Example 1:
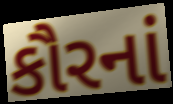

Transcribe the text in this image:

કૌરનાં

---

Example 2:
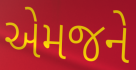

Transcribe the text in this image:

એમજને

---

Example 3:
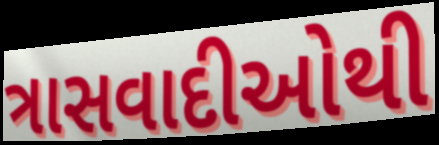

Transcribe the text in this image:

ત્રાસવાદીઓથી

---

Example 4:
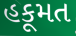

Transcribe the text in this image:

હકૂમત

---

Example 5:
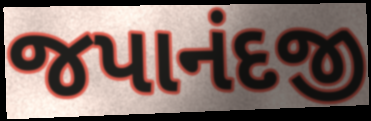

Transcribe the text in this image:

જપાનંદજી